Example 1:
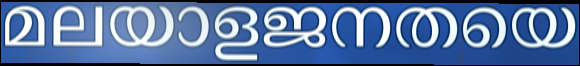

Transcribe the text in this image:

മലയാളജനതയെ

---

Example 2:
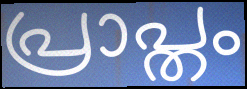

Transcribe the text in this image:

പ്രാപ്തം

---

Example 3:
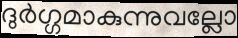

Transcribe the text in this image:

ദുർഗ്ഗമാകുന്നുവല്ലോ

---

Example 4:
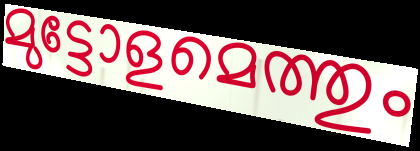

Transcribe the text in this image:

മുട്ടോളമെത്തും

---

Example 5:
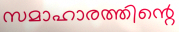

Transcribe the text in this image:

സമാഹാരത്തിന്റെ